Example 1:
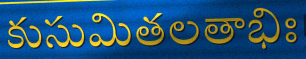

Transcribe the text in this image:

కుసుమితలతాభిః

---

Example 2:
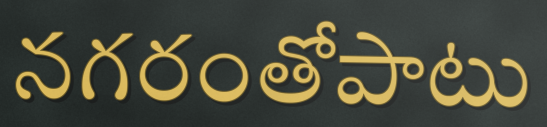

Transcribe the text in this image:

నగరంతోపాటు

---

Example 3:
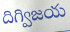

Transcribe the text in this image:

దిగ్విజయ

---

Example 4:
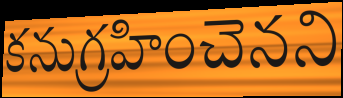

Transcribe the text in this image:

కనుగ్రహించెనని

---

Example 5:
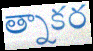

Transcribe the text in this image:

త్నాకర